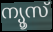
ന്യൂസ്